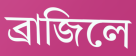
ব্রাজিলে